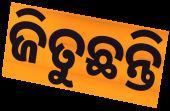
ଜିତୁଛନ୍ତି